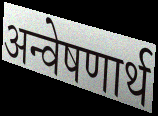
अन्वेषणार्थ